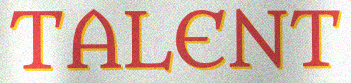
TALENT